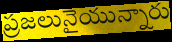
ప్రజలునైయున్నారు